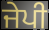
ਜੇਪੀ